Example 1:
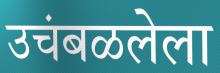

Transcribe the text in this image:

उचंबळलेला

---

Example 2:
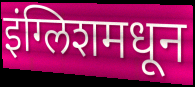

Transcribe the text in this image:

इंग्लिशमधून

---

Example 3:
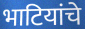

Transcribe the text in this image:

भाटियांचे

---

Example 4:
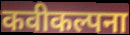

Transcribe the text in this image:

कवीकल्पना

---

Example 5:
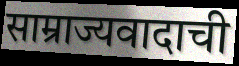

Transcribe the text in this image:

साम्राज्यवादाची